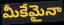
మీకేమైనా